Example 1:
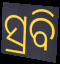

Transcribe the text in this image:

ସ୍ରବି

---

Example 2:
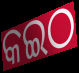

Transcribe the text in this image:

କଇଠ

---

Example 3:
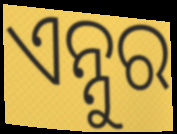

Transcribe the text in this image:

ଏନ୍ନୁର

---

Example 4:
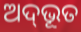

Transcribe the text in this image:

ଅଦ୍‌ଭୂତ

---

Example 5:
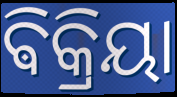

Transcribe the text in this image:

ଵିକ୍ରିୟା